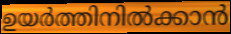
ഉയർത്തിനിൽക്കാൻ